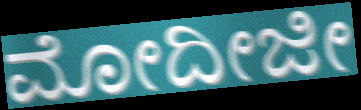
ಮೋದೀಜೀ